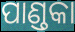
ପାଣ୍ଡକା